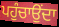
ਪਹੁੰਚਾਉਂਦਾ